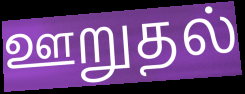
ஊறுதல்